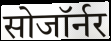
सोजॉर्नर